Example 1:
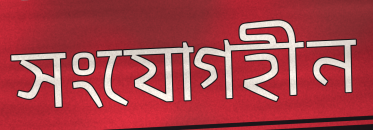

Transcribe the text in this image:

সংযোগহীন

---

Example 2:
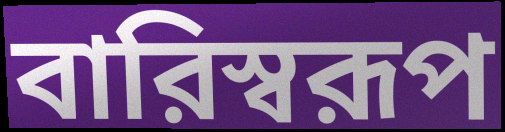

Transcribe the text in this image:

বারিস্বরূপ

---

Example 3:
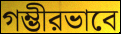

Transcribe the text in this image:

গম্ভীরভাবে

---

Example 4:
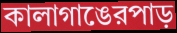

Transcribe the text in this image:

কালাগাঙেরপাড়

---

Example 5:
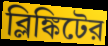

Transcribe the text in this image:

ব্লিঙ্কিটের